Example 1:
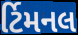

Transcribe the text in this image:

ર્ટિમનલ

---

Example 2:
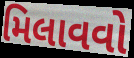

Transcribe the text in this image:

મિલાવવો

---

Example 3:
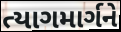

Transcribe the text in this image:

ત્યાગમાર્ગને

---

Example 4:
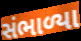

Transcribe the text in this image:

સંભાળ્યા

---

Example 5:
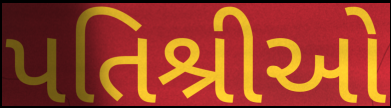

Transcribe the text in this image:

પતિશ્રીઓ